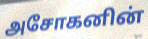
அசோகனின்